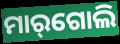
ମାର୍‌ଗୋଲି